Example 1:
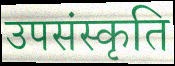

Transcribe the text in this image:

उपसंस्कृति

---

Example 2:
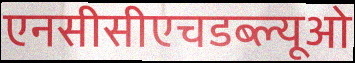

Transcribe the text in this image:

एनसीसीएचडब्ल्यूओ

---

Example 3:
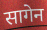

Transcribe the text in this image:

सागेन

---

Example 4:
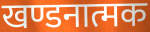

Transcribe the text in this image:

खण्डनात्मक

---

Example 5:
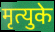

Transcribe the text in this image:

मृत्युके